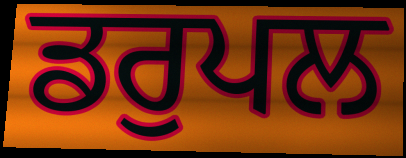
ਡਰੁਪਲ